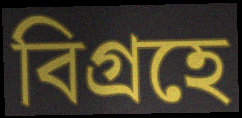
বিগ্রহে